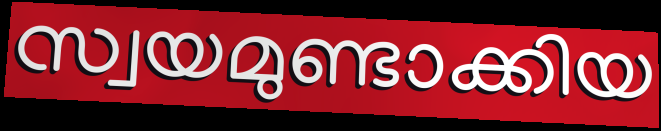
സ്വയമുണ്ടാക്കിയ